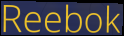
Reebok